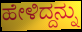
ಹೇಳಿದ್ದನ್ನು